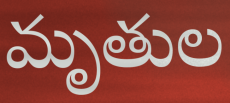
మృతుల